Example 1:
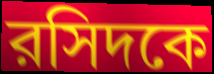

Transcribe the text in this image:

রসিদকে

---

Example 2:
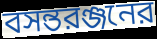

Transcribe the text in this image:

বসন্তরঞ্জনের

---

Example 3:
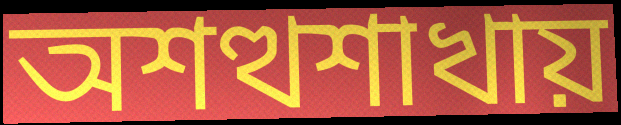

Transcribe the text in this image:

অশত্থশাখায়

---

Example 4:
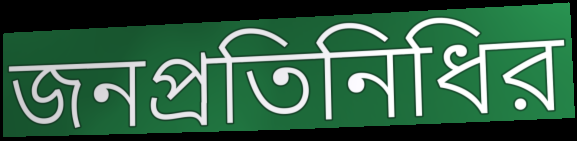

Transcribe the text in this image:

জনপ্রতিনিধির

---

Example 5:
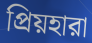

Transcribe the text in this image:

প্রিয়হারা